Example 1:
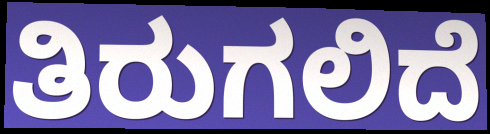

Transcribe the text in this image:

ತಿರುಗಲಿದೆ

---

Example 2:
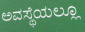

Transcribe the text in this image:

ಅವಸ್ಥೆಯಲ್ಲೂ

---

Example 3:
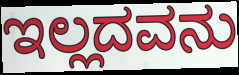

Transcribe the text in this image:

ಇಲ್ಲದವನು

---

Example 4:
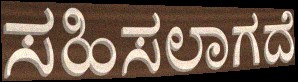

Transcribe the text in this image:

ಸಹಿಸಲಾಗದೆ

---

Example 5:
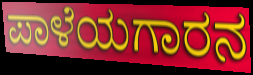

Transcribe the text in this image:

ಪಾಳೆಯಗಾರನ